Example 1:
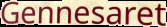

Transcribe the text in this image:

Gennesaret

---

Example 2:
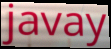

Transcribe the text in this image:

javay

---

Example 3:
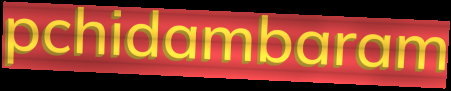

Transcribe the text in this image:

pchidambaram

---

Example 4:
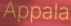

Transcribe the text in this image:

Appala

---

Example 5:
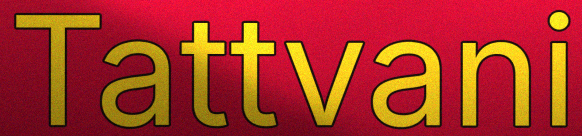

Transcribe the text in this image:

Tattvani